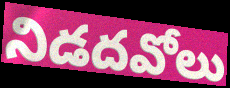
నిడదవోలు